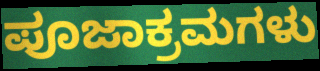
ಪೂಜಾಕ್ರಮಗಳು